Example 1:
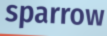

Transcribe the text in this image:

sparrow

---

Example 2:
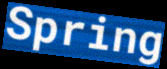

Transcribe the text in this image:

Spring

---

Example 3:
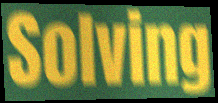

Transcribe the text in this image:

Solving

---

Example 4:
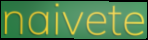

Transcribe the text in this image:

naivete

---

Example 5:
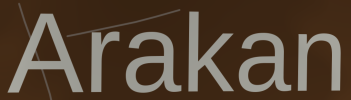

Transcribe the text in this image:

Arakan